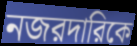
নজরদারিকে